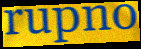
rupno